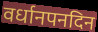
वर्धानपनदिन